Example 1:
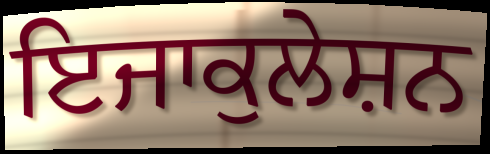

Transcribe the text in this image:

ਇਜਾਕੁਲੇਸ਼ਨ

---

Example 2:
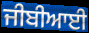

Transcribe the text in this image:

ਜੀਬੀਆਈ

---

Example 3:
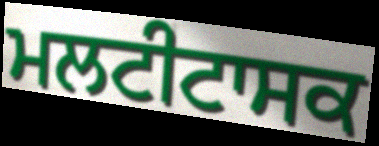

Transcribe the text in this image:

ਮਲਟੀਟਾਸਕ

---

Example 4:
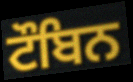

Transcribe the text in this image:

ਟੌਬਿਨ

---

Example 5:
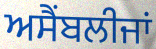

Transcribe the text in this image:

ਅਸੈਂਬਲੀਜਾਂ